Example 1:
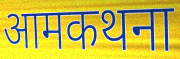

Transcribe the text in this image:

आमकथना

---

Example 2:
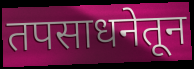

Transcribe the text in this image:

तपसाधनेतून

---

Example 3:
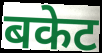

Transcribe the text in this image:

बकेट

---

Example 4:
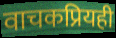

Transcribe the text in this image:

वाचकप्रियही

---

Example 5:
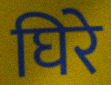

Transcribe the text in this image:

घिरे